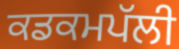
ਕਡਕਮਪੱਲੀ